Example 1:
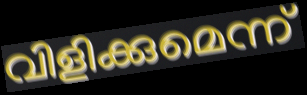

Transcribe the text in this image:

വിളിക്കുമെന്ന്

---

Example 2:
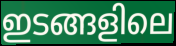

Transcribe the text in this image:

ഇടങ്ങളിലെ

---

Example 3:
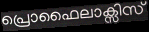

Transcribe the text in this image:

പ്രൊഫൈലാക്സിസ്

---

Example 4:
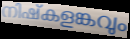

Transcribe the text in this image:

നിഷ്‌കളങ്കവും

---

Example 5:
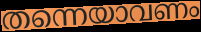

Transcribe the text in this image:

തന്നെയാവണം